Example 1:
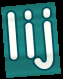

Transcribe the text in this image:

lij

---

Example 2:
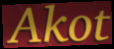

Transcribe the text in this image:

Akot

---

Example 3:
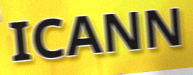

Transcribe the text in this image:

ICANN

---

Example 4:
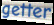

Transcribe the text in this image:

getter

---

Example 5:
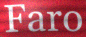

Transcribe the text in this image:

Faro